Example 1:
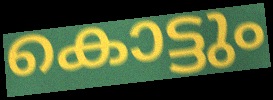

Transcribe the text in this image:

കൊട്ടും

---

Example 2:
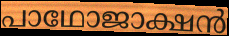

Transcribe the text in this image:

പാഥോജാക്ഷൻ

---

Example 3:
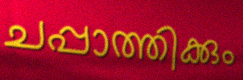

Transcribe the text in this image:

ചപ്പാത്തിക്കും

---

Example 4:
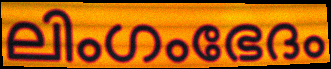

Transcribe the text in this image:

ലിംഗംഭേദം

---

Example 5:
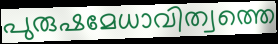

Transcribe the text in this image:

പുരുഷമേധാവിത്വത്തെ